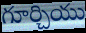
గూర్చియు